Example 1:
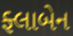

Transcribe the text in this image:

ફ્લાબેન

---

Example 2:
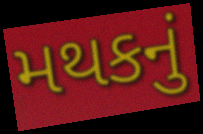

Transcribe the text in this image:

મથકનું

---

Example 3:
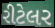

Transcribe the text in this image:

રીટેલર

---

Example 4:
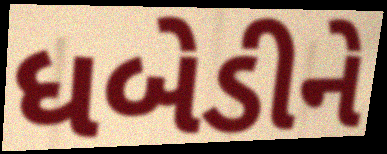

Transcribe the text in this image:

ધબેડીને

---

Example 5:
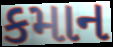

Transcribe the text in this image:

કમાન